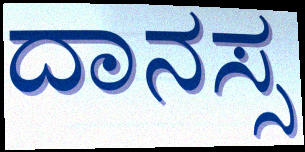
ದಾನಸ್ಸ